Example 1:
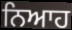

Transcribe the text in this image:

ਨਿਆਹ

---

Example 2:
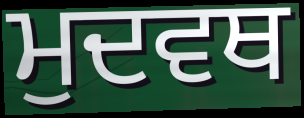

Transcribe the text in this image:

ਮੁਦਵਥ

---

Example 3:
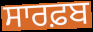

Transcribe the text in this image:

ਸਾਰਫ਼ਬ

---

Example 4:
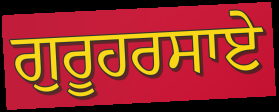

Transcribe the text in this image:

ਗੁਰੂਹਰਸਾਏ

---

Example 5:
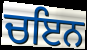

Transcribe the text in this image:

ਚਇਨ